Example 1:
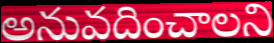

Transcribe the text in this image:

అనువదించాలని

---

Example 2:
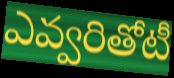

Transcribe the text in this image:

ఎవ్వరితోటీ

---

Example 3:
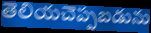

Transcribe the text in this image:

తెలియచెప్పబడును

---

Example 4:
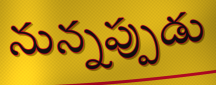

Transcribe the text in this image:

నున్నప్పుడు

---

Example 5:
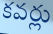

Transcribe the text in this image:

కవర్లు